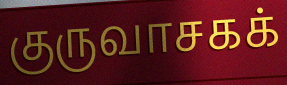
குருவாசகக்